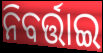
ନିବର୍ତ୍ତାଇ